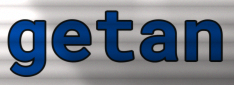
getan